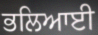
ਭਲਿਆਈ